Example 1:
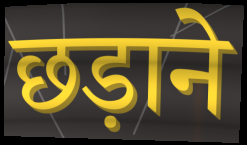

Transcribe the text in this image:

छड़ाने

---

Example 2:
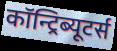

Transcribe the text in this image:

कॉन्ट्रिब्यूटर्स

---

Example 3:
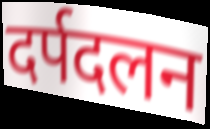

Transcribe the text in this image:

दर्पदलन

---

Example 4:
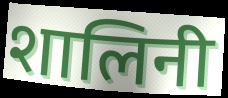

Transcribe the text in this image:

शालिनी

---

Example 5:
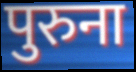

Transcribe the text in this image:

पुरुना